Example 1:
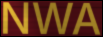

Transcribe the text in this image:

NWA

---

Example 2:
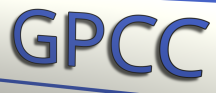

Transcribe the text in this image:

GPCC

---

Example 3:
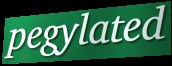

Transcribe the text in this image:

pegylated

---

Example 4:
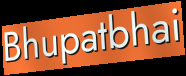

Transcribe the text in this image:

Bhupatbhai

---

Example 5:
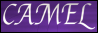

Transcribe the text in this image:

CAMEL